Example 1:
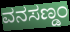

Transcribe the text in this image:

ವನಸಣ್ಡಂ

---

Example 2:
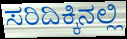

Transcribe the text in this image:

ಸರಿದಿಕ್ಕಿನಲ್ಲಿ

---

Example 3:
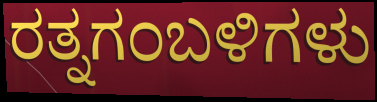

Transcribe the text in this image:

ರತ್ನಗಂಬಳಿಗಳು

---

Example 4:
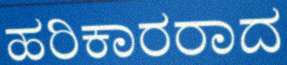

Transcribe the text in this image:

ಹರಿಕಾರರಾದ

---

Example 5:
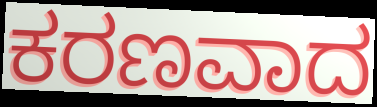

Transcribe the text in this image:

ಕರಣವಾದ